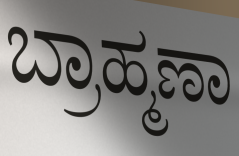
ಬ್ರಾಹ್ಮಣಾ